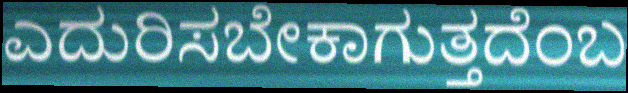
ಎದುರಿಸಬೇಕಾಗುತ್ತದೆಂಬ